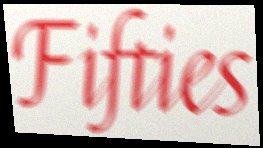
Fifties